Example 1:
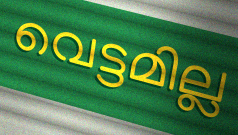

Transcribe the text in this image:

വെട്ടമില്ല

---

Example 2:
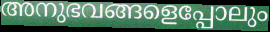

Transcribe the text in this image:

അനുഭവങ്ങളെപ്പോലും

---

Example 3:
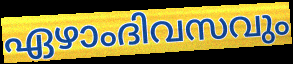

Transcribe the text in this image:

ഏഴാംദിവസവും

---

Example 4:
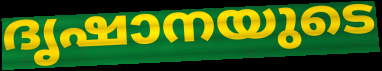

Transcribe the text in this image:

ദൃഷാനയുടെ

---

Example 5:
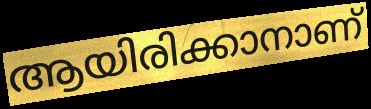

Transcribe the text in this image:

ആയിരിക്കാനാണ്